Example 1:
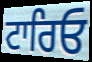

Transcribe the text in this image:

ਟਾਰਿਓ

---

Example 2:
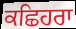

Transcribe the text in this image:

ਕਛਿਹਰਾ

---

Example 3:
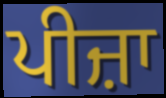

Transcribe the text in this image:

ਪੀਜ਼ਾ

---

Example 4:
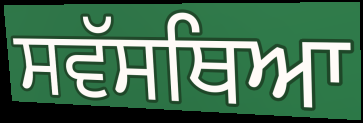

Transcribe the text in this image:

ਸਵੱਸਥਿਆ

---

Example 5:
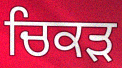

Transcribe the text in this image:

ਚਿਕੜ